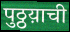
पुठ्ठय़ाची